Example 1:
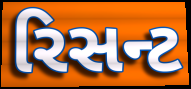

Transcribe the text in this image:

રિસન્ટ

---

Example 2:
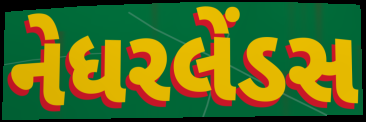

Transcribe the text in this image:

નેધરલેંડસ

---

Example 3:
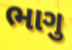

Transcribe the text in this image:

ભાગુ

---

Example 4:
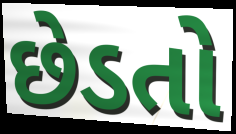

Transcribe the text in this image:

છેડતો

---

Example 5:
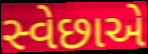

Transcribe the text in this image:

સ્વેછાએ